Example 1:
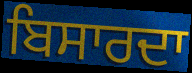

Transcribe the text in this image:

ਬਿਸਾਰਦਾ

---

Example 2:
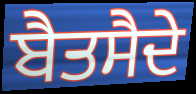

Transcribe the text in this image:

ਬੈਤਸੈਦੇ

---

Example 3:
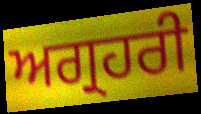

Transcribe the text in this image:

ਅਗ੍ਰਹਰੀ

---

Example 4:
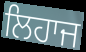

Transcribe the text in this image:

ਲਿਹਾਜ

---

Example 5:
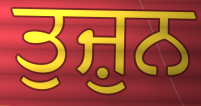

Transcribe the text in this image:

ਤੁਜ਼ੁਨ